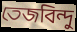
তেজবিন্দু